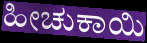
ಹೀಚುಕಾಯಿ